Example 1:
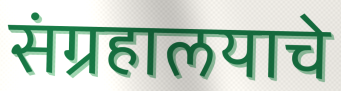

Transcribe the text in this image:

संग्रहालयाचे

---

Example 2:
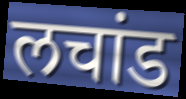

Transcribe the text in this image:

लचांड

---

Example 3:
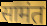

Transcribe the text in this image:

सामंत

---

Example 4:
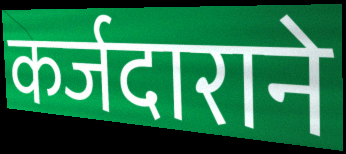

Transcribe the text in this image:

कर्जदाराने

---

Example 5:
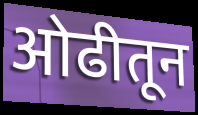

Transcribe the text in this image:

ओढीतून